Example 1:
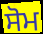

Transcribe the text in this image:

ਸੋਮ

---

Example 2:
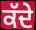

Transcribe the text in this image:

ਕੱਦੇ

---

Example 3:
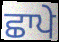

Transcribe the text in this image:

ਛਾਪੇ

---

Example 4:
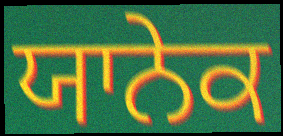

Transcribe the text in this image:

ਯਾਨੇਕ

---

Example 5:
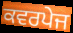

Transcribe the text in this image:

ਕਵਰਪੇਜ